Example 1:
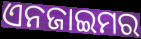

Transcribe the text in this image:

ଏନଜାଇମର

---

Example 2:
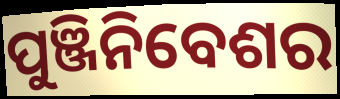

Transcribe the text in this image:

ପୁଞ୍ଜିନିବେଶର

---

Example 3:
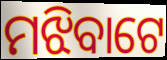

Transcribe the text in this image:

ମଝିବାଟେ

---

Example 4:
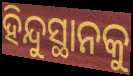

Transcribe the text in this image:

ହିନ୍ଦୁସ୍ଥାନକୁ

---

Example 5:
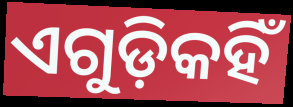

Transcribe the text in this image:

ଏଗୁଡ଼ିକହିଁ